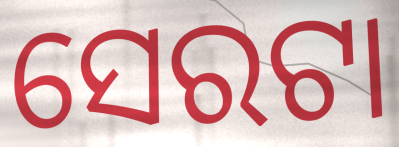
ସେରଟା